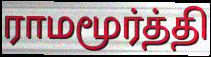
ராமமூர்த்தி